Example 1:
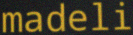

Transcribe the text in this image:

madeli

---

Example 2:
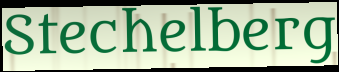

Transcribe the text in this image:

Stechelberg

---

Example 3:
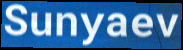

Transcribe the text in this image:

Sunyaev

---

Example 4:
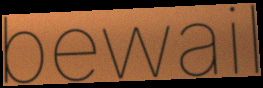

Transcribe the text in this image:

bewail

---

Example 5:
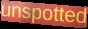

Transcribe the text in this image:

unspotted